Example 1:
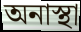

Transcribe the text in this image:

অনাস্থা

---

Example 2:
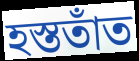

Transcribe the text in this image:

হস্ততাঁত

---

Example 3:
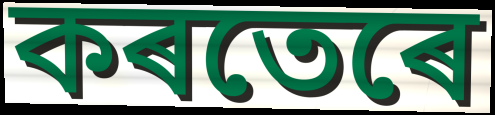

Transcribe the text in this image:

কৰতেৰে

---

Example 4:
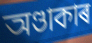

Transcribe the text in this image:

অণ্ডাকাৰ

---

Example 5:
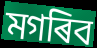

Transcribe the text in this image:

মগৰিব